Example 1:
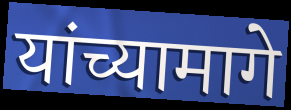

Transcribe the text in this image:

यांच्यामागे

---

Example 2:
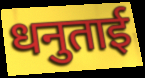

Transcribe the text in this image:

धनुताई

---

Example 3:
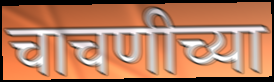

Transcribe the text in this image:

चाचणीच्या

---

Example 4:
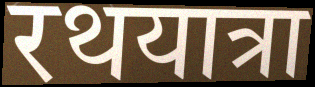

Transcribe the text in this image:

रथयात्रा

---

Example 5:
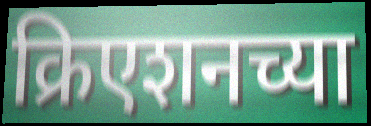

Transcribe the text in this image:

क्रिएशनच्या